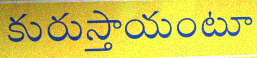
కురుస్తాయంటూ